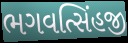
ભગવત્સિંહજી